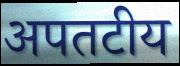
अपतटीय